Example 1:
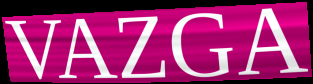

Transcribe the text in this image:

VAZGA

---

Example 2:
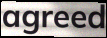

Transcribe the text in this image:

agreed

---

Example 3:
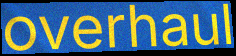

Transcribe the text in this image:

overhaul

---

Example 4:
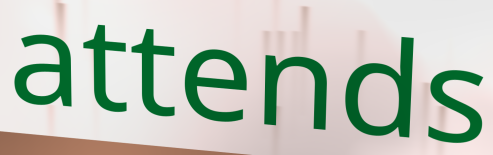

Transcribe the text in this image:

attends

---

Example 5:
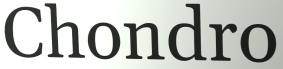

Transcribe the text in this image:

Chondro